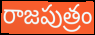
రాజపుత్రం